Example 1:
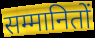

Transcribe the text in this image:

सम्मानितों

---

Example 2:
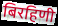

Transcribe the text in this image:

बिरहिणी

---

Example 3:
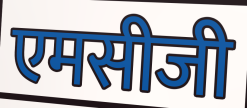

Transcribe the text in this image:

एमसीजी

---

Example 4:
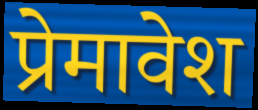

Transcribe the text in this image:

प्रेमावेश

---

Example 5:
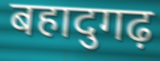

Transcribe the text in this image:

बहादुगढ़